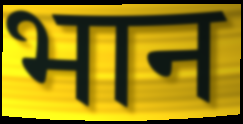
भान